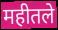
महीतले